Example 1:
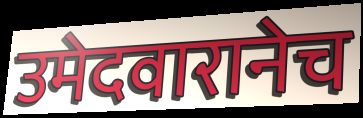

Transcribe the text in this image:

उमेदवारानेच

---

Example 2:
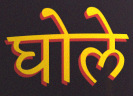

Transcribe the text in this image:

घोले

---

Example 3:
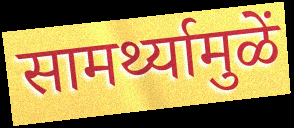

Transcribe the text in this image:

सामर्थ्यामुळें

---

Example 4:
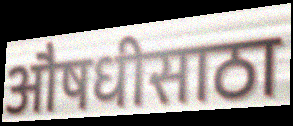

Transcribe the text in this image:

औषधीसाठा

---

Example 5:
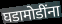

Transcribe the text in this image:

घडामोडींना